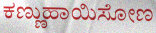
ಕಣ್ಣುಹಾಯಿಸೋಣ